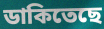
ডাকিতেছে